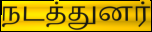
நடத்துனர்